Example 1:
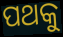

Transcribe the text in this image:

ପଥକୁ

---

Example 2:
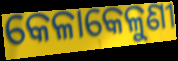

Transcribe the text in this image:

କେଳାକେଳୁଣୀ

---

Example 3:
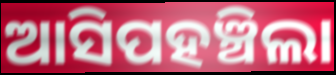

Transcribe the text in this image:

ଆସିପହଞ୍ଚିଲା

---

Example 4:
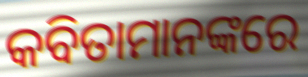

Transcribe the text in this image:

କବିତାମାନଙ୍କରେ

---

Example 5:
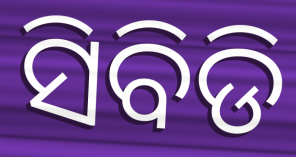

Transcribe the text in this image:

ସିବିଡି